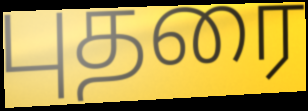
புதரை